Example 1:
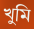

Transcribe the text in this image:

খুমি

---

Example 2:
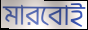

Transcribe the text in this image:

মারবোই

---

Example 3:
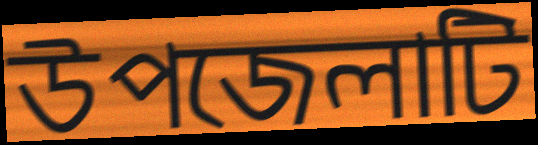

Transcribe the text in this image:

উপজেলাটি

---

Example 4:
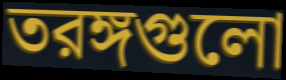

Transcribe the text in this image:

তরঙ্গগুলো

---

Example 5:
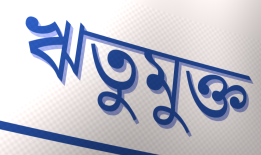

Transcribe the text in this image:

ঋতুমুক্ত